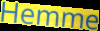
Hemme